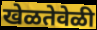
खेळतेवेळी